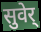
सुवेर्